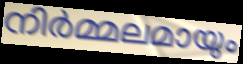
നിർമ്മലമായും